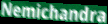
Nemichandra